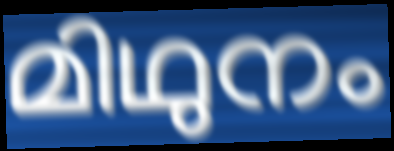
മിഥുനം